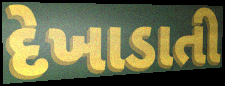
દેખાડાતી